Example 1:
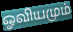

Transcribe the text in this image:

ஓவியமும்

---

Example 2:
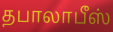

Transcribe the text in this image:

தபாலாபீஸ்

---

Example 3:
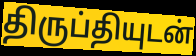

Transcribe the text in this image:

திருப்தியுடன்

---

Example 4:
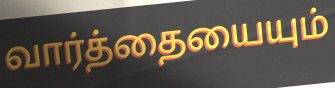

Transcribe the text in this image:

வார்த்தையையும்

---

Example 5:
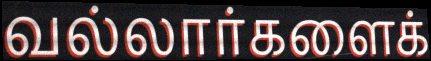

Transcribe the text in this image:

வல்லார்களைக்